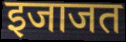
इजाजत